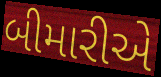
બીમારીએ